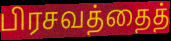
பிரசவத்தைத்